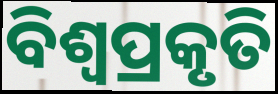
ବିଶ୍ଵପ୍ରକୃତି